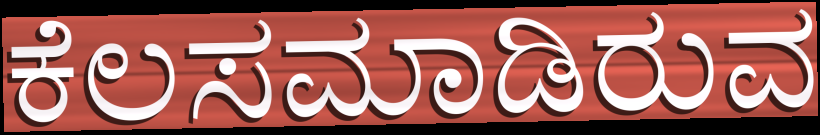
ಕೆಲಸಮಾಡಿರುವ